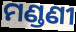
ମଣ୍ଡଣୀ